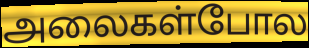
அலைகள்போல